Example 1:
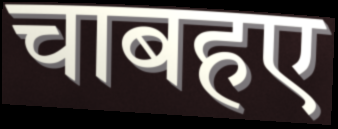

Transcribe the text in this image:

चाबहए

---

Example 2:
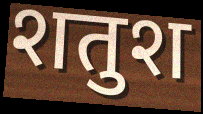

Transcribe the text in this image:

शतुश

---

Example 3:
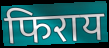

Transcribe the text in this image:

फिराय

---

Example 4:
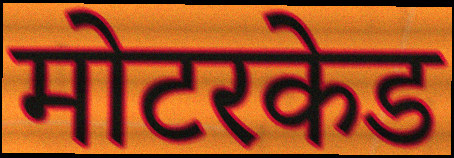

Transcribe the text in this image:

मोटरकेड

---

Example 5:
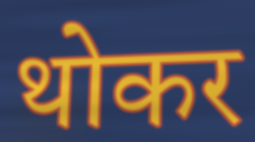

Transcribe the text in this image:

थोकर